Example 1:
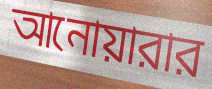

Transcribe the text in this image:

আনোয়ারার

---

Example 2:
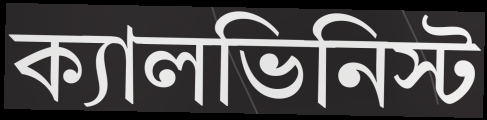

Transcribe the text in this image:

ক্যালভিনিস্ট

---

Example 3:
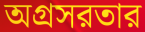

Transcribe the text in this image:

অগ্রসরতার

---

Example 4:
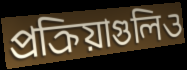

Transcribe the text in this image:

প্রক্রিয়াগুলিও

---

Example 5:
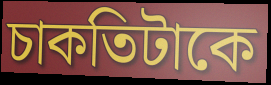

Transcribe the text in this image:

চাকতিটাকে